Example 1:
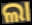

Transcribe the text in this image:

ଲା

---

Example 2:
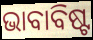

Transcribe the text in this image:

ଭାବାବିଷ୍ଟ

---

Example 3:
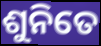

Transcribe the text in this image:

ଶୁନିତେ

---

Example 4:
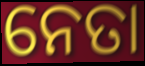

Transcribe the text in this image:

ନେତା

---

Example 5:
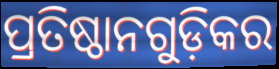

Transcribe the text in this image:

ପ୍ରତିଷ୍ଠାନଗୁଡ଼ିକର